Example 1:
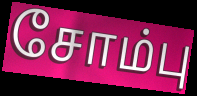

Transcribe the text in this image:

சோம்பு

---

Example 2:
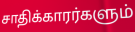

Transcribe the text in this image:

சாதிக்காரர்களும்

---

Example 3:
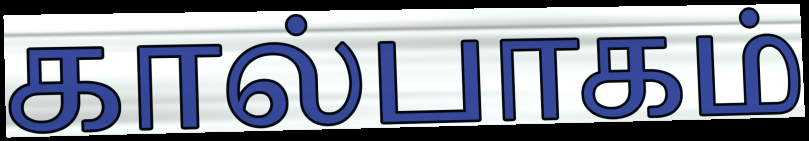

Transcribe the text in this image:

கால்பாகம்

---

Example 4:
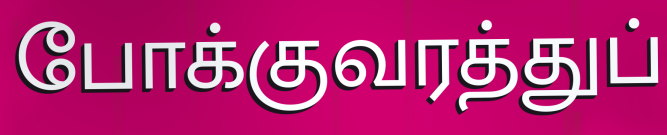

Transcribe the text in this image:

போக்குவரத்துப்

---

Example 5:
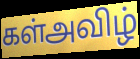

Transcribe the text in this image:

கள்அவிழ்